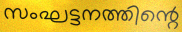
സംഘട്ടനത്തിന്റെ